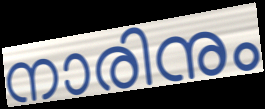
നാരിനും